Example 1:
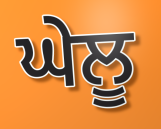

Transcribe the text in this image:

ਘੇਲੂ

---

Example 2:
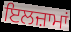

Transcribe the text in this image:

ਇਲਜ਼ਾਮਾਂ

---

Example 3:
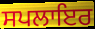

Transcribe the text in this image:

ਸਪਲਾਇਰ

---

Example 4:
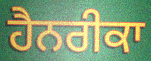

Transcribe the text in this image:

ਹੈਨਰੀਕਾ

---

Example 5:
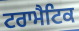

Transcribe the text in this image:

ਟਰਾਮੈਟਿਕ